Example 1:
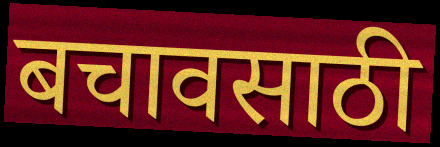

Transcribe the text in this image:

बचावसाठी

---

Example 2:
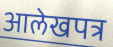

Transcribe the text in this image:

आलेखपत्र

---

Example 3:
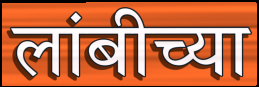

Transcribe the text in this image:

लांबीच्या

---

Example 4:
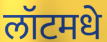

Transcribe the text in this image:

लॉटमधे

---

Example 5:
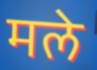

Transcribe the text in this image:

मले